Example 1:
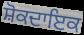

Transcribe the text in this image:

ਸ਼ੋਕਦਾਇਕ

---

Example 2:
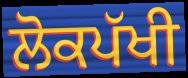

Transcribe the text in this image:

ਲੋਕਪੱਖੀ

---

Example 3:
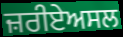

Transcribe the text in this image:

ਜ਼ਰੀਏਅਸਲ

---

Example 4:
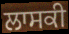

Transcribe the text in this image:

ਲਾਸਕੀ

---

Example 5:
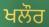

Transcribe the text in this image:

ਖਲੌਰ